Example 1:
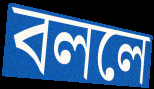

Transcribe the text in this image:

বললে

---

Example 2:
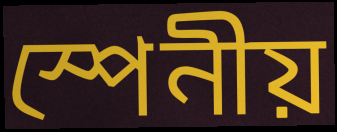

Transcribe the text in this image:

স্পেনীয়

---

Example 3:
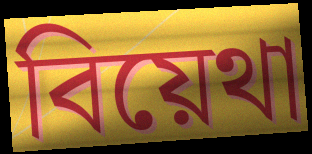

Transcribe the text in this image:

বিয়েথা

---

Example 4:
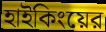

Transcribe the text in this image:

হাইকিংয়ের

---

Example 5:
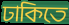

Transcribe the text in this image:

ঢাকিতে